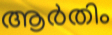
ആർതിം